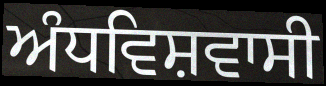
ਅੰਧਵਿਸ਼ਵਾਸੀ